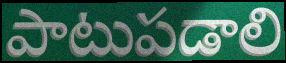
పాటుపడాలి